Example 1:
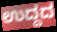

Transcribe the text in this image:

ಉದ್ದದ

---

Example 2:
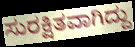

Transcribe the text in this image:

ಸುರಕ್ಷಿತವಾಗಿದ್ದು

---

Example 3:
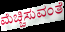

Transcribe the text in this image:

ಮೆಚ್ಚಿಸುವಂತೆ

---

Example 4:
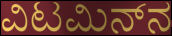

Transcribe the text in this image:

ವಿಟಮಿನ್‌ನ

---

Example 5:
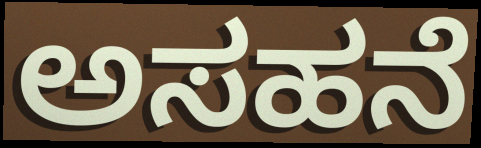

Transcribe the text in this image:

ಅಸಹನೆ